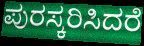
ಪುರಸ್ಕರಿಸಿದರೆ